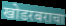
खोडरबराचा